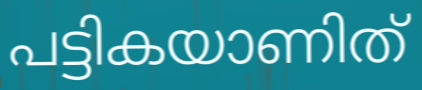
പട്ടികയാണിത്